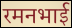
रमनभाई